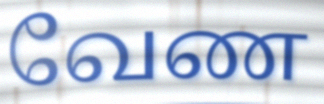
வேண